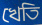
খেতি